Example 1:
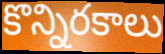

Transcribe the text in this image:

కొన్నిరకాలు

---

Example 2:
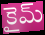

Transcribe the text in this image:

కైమ్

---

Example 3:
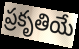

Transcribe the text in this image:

ప్రకృతియే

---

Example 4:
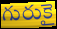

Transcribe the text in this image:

గురుకై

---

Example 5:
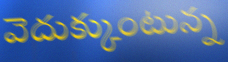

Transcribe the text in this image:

వెదుక్కుంటున్న